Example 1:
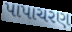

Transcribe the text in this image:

પાપાચરણ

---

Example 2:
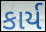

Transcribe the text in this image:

કાર્ય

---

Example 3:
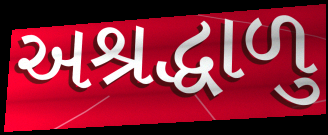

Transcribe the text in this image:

અશ્રદ્ધાળુ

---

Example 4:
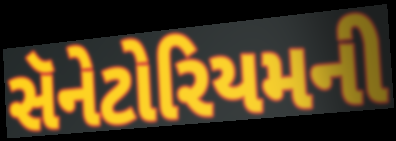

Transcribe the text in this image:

સૅનેટોરિયમની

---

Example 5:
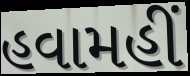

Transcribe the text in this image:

હવામહીં